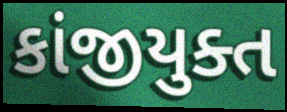
કાંજીયુક્ત